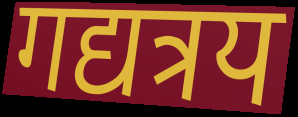
गद्यत्रय